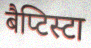
बैप्टिस्टा